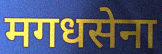
मगधसेना